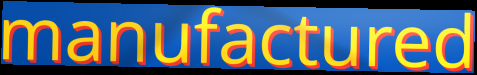
manufactured